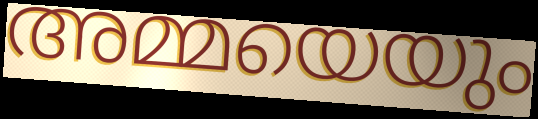
അമ്മയെയും